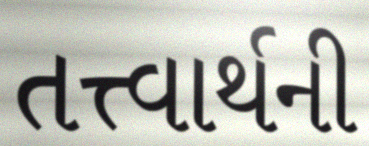
તત્ત્વાર્થની